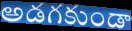
అడగకుండా